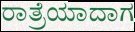
ರಾತ್ರೆಯಾದಾಗ